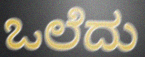
ಒಲೆದು